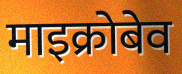
माइक्रोबेव